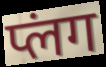
प्लंग